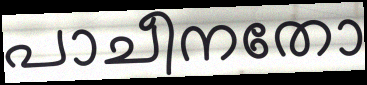
പാചീനതോ